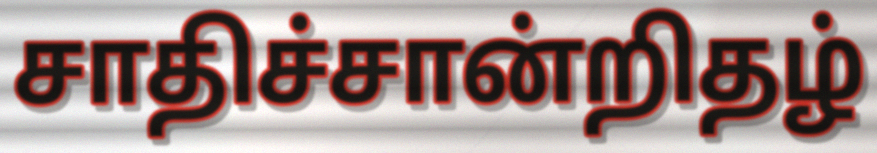
சாதிச்சான்றிதழ்